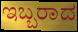
ಇಬ್ಬರಾದ